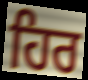
ਹਿਰ